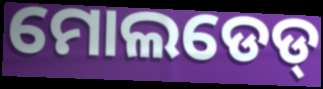
ମୋଲଡେଡ୍